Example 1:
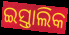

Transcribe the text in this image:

ଇସ୍ତାଲିକ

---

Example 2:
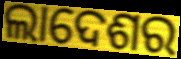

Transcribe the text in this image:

ଲାଦେଶର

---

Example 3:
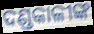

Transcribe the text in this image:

ଦଣ୍ଡକାଳୀଙ୍କ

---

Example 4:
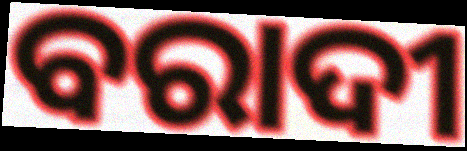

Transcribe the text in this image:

ବରାଦୀ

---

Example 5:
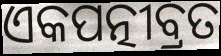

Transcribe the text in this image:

ଏକପତ୍ନୀବ୍ରତ